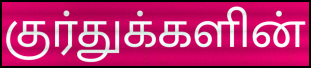
குர்துக்களின்